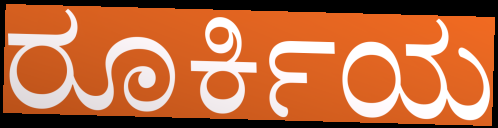
ರೂರ್ಕಿಯ